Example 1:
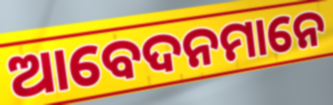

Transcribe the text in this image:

ଆବେଦନମାନେ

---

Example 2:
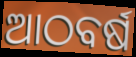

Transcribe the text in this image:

ଆଠବର୍ଷ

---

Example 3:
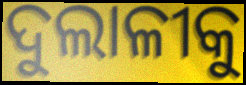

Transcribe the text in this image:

ଦୁଲାଳୀକୁ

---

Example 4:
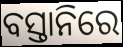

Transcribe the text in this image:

ବସ୍ତାନିରେ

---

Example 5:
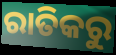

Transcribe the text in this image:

ରାତିକରୁ